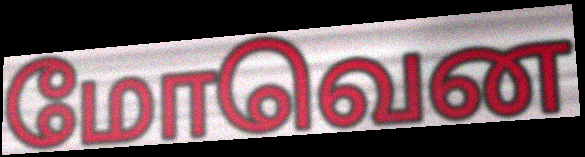
மோவென